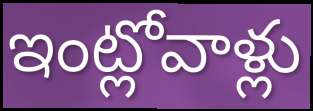
ఇంట్లోవాళ్లు